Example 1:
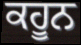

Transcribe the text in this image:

ਕਹੂਨ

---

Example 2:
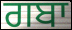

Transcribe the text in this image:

ਗਬਾ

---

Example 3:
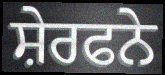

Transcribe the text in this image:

ਸ਼ੇਰਫਨੇ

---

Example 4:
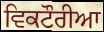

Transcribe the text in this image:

ਵਿਕਟੌਰੀਆ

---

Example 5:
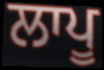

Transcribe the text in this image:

ਲਾਪੂ